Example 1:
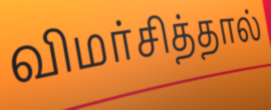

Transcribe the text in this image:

விமர்சித்தால்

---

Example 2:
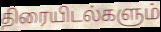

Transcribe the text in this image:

திரையிடல்களும்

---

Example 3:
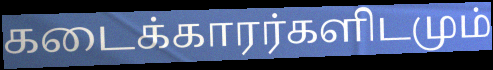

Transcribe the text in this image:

கடைக்காரர்களிடமும்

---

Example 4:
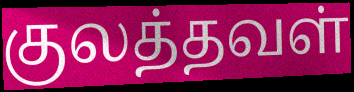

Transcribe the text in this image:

குலத்தவள்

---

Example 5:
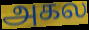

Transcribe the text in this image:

அகல